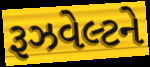
રૂઝવેલ્ટને